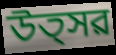
উত্সৱ